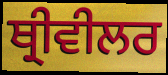
ਥ੍ਰੀਵੀਲਰ